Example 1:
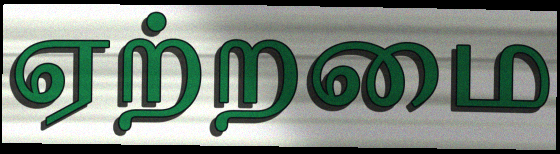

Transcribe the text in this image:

ஏற்றமை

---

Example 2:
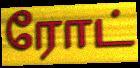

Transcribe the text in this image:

ரோட்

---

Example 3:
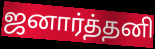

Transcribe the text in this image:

ஜனார்த்தனி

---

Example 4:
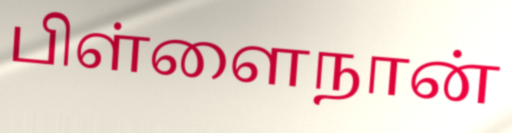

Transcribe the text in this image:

பிள்ளைநான்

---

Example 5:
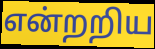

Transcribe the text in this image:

என்றறிய